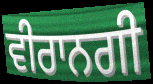
ਵੀਰਾਨਗੀ